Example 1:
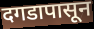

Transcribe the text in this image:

दगडापासून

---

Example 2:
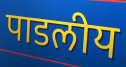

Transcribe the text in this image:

पाडलीय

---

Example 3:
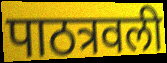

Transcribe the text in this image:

पाठत्रवली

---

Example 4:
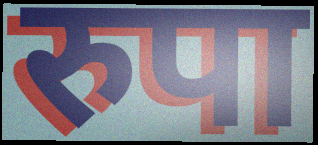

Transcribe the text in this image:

रुपा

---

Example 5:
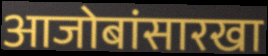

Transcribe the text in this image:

आजोबांसारखा